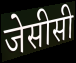
जेसीसी